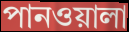
পানওয়ালা